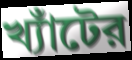
খ্যাঁটের